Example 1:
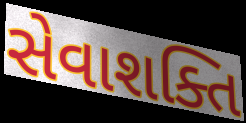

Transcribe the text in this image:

સેવાશક્તિ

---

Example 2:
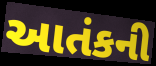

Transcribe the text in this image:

આતંકની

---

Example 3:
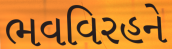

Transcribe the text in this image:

ભવવિરહને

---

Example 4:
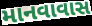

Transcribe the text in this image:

માનવાવાસ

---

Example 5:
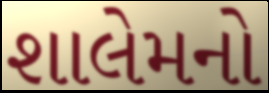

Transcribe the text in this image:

શાલેમનો